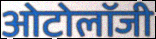
ओटोलॉजी